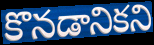
కొనడానికని